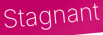
Stagnant